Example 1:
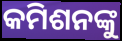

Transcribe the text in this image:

କମିଶନଙ୍କୁ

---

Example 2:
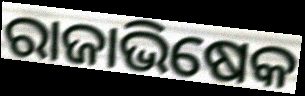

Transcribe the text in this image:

ରାଜାଭିଷେକ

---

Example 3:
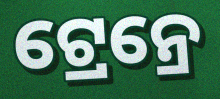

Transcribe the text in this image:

ଟ୍ରେନ୍ରେ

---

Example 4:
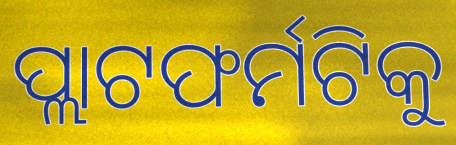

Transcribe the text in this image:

ପ୍ଲାଟଫର୍ମଟିକୁ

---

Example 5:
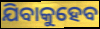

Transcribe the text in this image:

ଯିବାକୁହେବ